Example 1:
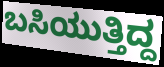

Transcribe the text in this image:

ಬಸಿಯುತ್ತಿದ್ದ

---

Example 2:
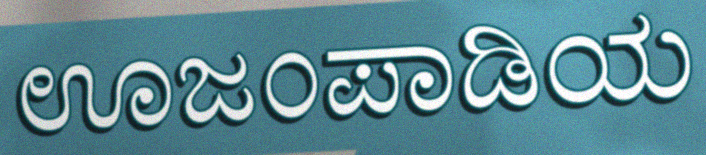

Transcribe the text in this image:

ಊಜಂಪಾಡಿಯ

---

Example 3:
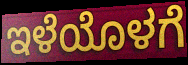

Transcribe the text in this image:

ಇಳೆಯೊಳಗೆ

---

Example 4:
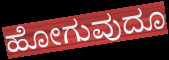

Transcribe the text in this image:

ಹೋಗುವುದೂ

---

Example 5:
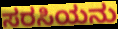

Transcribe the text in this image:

ಸರಸಿಯನು